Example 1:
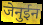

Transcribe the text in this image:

जेनुईन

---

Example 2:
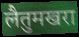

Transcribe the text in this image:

लैतुमखरा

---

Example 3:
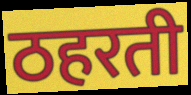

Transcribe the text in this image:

ठहरती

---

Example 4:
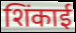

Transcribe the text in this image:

शिंकाई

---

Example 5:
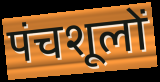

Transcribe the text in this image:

पंचशूलों